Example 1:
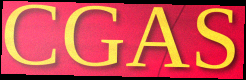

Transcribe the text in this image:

CGAS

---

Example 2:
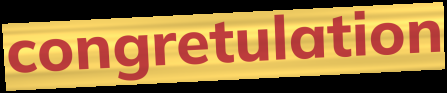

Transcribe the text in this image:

congretulation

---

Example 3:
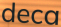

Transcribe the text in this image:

deca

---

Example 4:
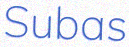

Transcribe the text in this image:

Subas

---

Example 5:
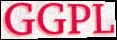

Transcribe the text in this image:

GGPL